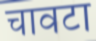
चावटा